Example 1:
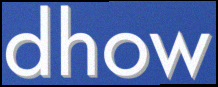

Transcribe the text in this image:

dhow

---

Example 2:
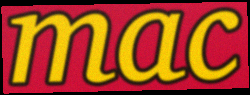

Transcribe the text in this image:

mac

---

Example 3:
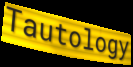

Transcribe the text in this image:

Tautology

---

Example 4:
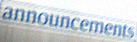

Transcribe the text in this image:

announcements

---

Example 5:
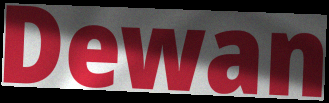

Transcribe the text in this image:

Dewan